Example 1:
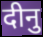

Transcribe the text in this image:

दीनु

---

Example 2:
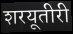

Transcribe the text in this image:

शरयूतीरी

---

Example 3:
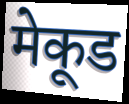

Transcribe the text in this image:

मेकूड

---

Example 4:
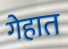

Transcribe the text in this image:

गेहात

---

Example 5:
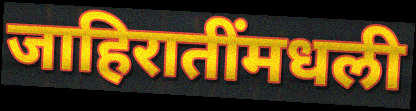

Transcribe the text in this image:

जाहिरातींमधली